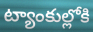
ట్యాంకుల్లోకి